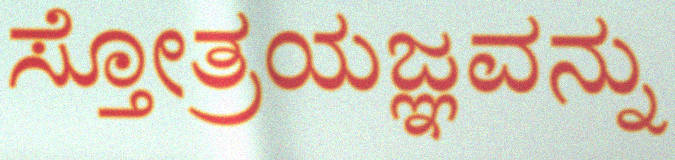
ಸ್ತೋತ್ರಯಜ್ಞವನ್ನು